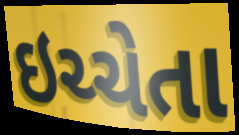
ઇચ્ચેતા